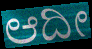
ಆದೀ